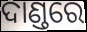
ଦାଣ୍ଡରେ